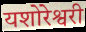
यशोरेश्वरी